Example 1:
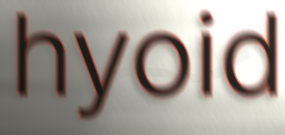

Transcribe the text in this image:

hyoid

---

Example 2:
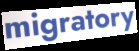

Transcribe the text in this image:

migratory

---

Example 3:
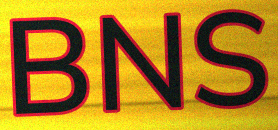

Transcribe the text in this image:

BNS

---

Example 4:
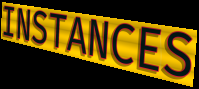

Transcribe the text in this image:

INSTANCES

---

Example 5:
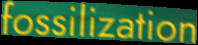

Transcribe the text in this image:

fossilization